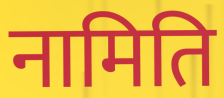
नामिति